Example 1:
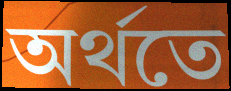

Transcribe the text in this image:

অৰ্থতে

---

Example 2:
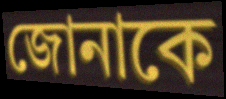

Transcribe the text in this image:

জোনাকে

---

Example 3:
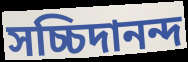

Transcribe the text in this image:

সচ্চিদানন্দ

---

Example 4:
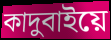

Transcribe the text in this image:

কাদুবাইয়ে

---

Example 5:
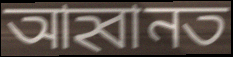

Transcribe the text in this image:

আহ্বানত